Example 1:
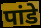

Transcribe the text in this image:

पांडे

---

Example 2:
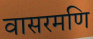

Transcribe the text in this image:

वासरमणि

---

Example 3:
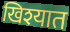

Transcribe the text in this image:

खिश्यात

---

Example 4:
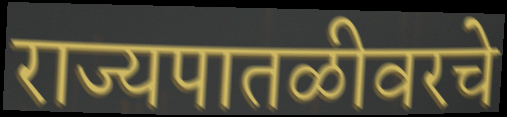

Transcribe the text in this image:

राज्यपातळीवरचे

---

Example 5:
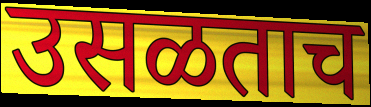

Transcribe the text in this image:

उसळताच